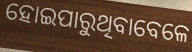
ହୋଇପାରୁଥିବାବେଳେ